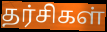
தர்சிகள்